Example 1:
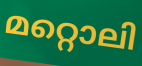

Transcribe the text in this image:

മറ്റൊലി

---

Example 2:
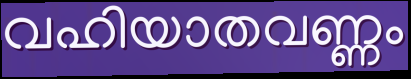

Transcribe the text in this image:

വഹിയാതവണ്ണം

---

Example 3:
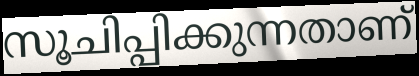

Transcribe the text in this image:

സൂചിപ്പിക്കുന്നതാണ്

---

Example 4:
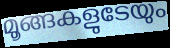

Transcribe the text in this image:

മൂങ്ങകളുടേയും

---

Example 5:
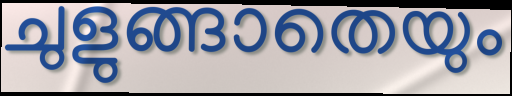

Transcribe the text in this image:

ചുളുങ്ങാതെയും